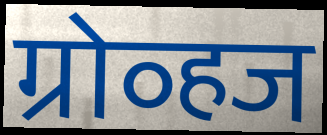
ग्रोव्हज